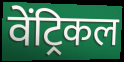
वेंट्रिकल